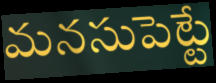
మనసుపెట్టే